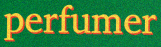
perfumer